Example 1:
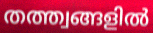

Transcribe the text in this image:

തത്ത്വങ്ങളിൽ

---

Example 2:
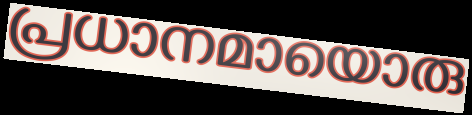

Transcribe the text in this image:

പ്രധാനമായൊരു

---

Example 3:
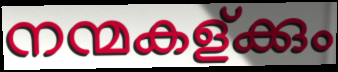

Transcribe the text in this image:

നന്മകള്ക്കും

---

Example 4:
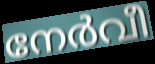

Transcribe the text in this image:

നേർവീ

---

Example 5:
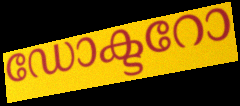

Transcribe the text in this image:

ഡോക്ടറോ